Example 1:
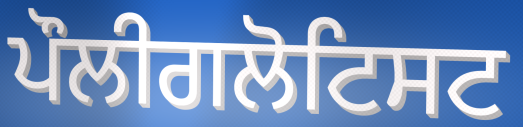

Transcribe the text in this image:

ਪੌਲੀਗਲੋਟਿਸਟ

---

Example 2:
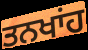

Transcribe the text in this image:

ਤਨਖਾਂਹ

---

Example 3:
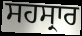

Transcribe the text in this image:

ਸਹਸ੍ਰਾਰ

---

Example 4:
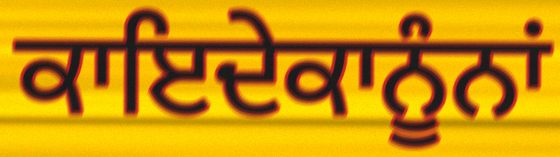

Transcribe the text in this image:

ਕਾਇਦੇਕਾਨੂੰਨਾਂ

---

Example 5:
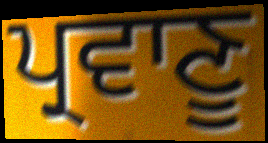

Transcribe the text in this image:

ਪ੍ਰਵਾਣੂ